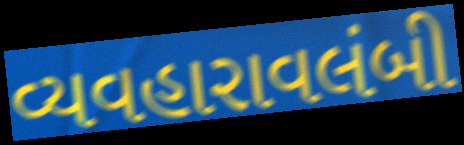
વ્યવહારાવલંબી